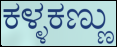
ಕಳ್ಳಕಣ್ಣು